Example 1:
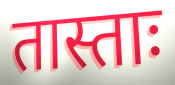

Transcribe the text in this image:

तास्ताः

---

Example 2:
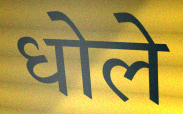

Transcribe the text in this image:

धोले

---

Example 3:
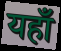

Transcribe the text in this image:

यहाँ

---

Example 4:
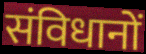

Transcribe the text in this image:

संविधानों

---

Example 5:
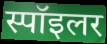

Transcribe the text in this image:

स्पॉइलर